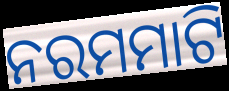
ନରମମାଟି